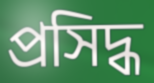
প্রসিদ্ধ